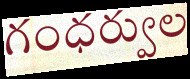
గంధర్వుల